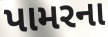
પામરના